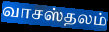
வாசஸ்தலம்